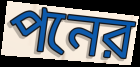
পনের